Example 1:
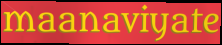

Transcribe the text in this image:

maanaviyate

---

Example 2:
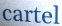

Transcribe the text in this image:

cartel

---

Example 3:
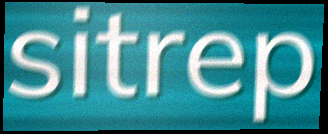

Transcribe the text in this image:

sitrep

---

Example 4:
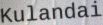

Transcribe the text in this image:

Kulandai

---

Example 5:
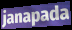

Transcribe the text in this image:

janapada